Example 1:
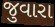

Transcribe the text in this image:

જુવારા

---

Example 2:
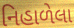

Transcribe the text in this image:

નિહાળેલા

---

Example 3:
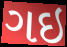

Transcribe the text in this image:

ગઇ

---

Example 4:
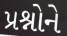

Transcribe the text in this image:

પ્રશ્નોને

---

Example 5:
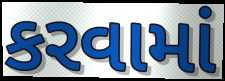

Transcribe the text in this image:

કરવામાં